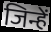
जिन्हें